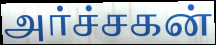
அர்ச்சகன்